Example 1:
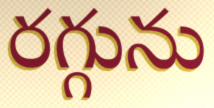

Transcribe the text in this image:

రగ్గును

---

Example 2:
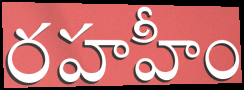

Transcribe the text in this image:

రహహీం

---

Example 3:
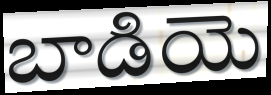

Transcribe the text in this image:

బాడియె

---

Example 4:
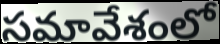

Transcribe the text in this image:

సమావేశంలో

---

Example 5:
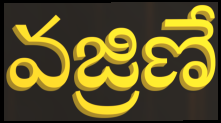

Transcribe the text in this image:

వజ్రిణే